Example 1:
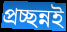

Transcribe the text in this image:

প্রচ্ছন্নই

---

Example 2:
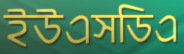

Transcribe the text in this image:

ইউএসডিএ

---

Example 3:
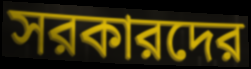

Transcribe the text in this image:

সরকারদের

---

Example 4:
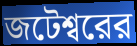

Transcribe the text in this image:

জটেশ্বরের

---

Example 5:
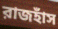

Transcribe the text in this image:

রাজহাঁস